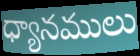
ధ్యానములు